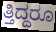
ತ್ತಿದ್ದರೂ